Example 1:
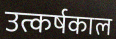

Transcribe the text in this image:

उत्कर्षकाल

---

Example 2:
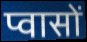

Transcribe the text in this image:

प्वासों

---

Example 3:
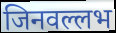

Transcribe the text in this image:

जिनवल्लभ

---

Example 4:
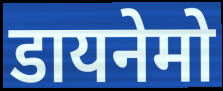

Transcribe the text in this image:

डायनेमो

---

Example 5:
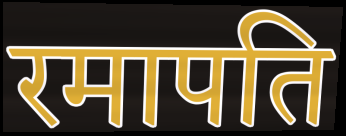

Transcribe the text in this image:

रमापति